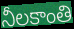
నీలకాంతి